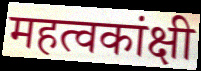
महत्वकांक्षी